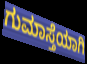
ಗುಮಾಸ್ತೆಯಾಗಿ